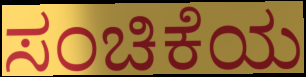
ಸಂಚಿಕೆಯ